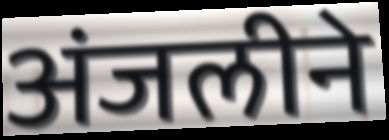
अंजलीने